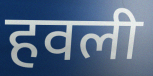
हवली